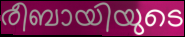
രീബായിയുടെ